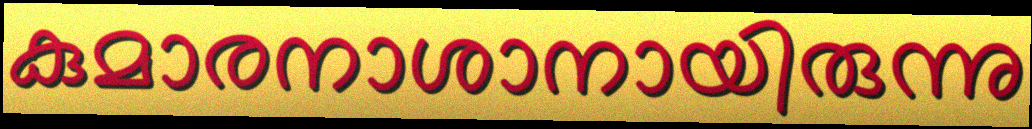
കുമാരനാശാനായിരുന്നു